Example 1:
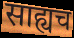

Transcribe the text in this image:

साह्यच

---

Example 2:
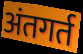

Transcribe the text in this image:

अंतगर्त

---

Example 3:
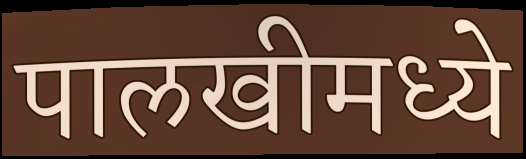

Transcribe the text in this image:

पालखीमध्ये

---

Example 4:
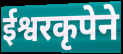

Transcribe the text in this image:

ईश्वरकृपेने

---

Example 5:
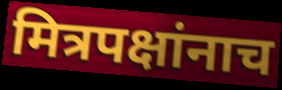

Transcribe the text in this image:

मित्रपक्षांनाच